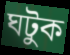
ঘটুক